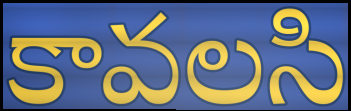
కావలసి